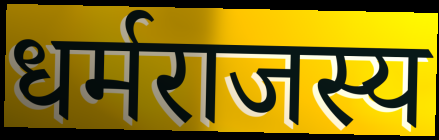
धर्मराजस्य